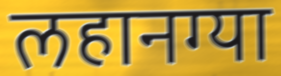
लहानग्या